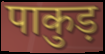
पाकुड़